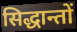
सिद्धान्तों